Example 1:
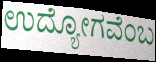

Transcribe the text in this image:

ಉದ್ಯೋಗವೆಂಬ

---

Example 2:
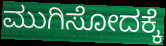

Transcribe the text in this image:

ಮುಗಿಸೋದಕ್ಕೆ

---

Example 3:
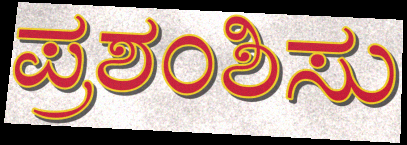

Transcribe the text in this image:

ಪ್ರಶಂಶಿಸು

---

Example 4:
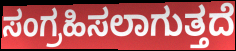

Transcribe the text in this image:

ಸಂಗ್ರಹಿಸಲಾಗುತ್ತದೆ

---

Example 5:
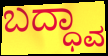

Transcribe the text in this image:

ಬದ್ಧ್ವಾ